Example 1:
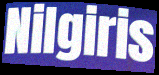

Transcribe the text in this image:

Nilgiris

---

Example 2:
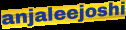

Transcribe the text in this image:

anjaleejoshi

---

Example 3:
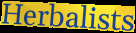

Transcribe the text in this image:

Herbalists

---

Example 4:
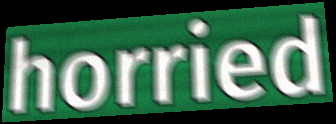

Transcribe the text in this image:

horried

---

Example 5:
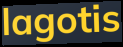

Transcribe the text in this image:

lagotis